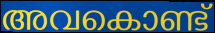
അവകൊണ്ട്